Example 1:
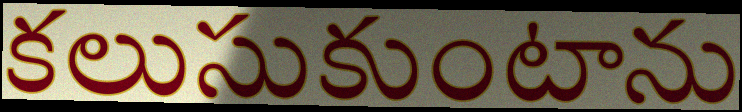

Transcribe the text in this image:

కలుసుకుంటాను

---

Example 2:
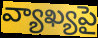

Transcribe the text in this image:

వ్యాఖ్యపై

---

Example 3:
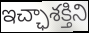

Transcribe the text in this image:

ఇచ్ఛాశక్తిని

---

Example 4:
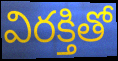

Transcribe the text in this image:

విరక్తితో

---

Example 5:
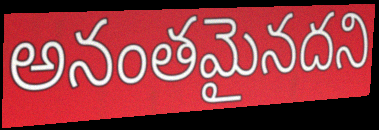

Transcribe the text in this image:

అనంతమైనదని